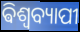
ଵିଶ୍ୱବ୍ୟାପୀ